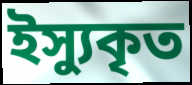
ইস্যুকৃত